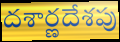
దశార్ణదేశపు